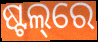
ଷ୍ଟଲ୍‌ରେ